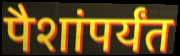
पैशांपर्यंत